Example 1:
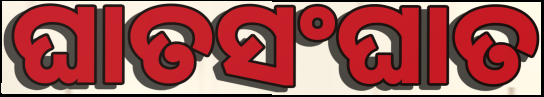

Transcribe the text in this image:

ଘାତସଂଘାତ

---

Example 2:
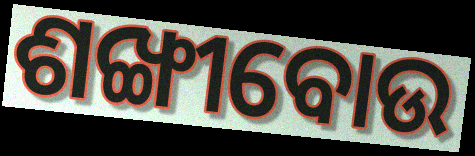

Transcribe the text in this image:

ଶଙ୍ଖୀବୋଉ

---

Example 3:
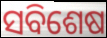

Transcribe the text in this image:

ସବିଶେଷ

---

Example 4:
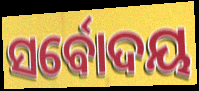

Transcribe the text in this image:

ସର୍ବୋଦୟ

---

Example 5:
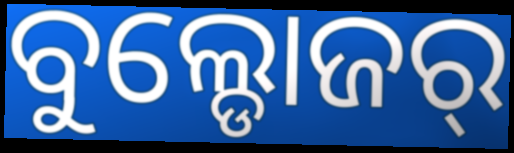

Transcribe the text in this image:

ବୁଲ୍ଡୋଜର୍